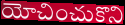
యోచించుకొని